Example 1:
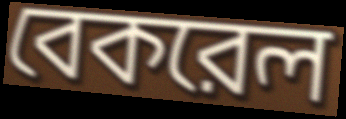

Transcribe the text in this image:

বেকরেল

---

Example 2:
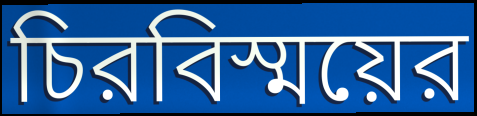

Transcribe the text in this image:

চিরবিস্ময়ের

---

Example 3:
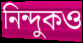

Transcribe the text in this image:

নিন্দুকও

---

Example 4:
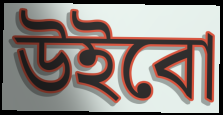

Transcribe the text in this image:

উইবো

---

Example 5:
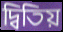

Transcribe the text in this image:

দ্বিতিয়